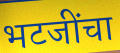
भटजींचा